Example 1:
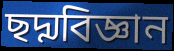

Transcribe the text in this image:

ছদ্মবিজ্ঞান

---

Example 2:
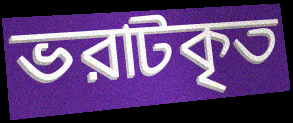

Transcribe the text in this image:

ভরাটকৃত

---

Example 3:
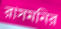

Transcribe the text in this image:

রাসমনির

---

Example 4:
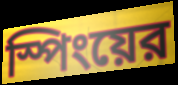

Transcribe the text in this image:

স্পিংয়ের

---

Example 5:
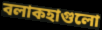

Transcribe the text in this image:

বলাকহাগুলো